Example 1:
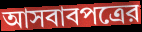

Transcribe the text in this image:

আসবাবপত্রের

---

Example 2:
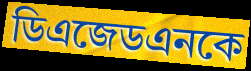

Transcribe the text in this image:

ডিএজেডএনকে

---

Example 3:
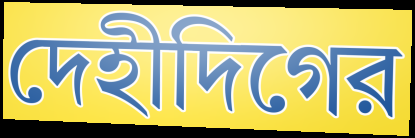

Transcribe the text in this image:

দেহীদিগের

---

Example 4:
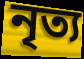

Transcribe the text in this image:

নৃত্য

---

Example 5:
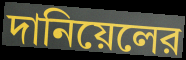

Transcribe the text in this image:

দানিয়েলের